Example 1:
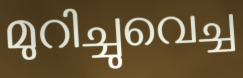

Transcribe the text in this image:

മുറിച്ചുവെച്ച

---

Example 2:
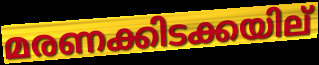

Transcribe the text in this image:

മരണക്കിടക്കയില്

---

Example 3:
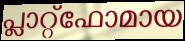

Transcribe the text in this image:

പ്ലാറ്റ്ഫോമായ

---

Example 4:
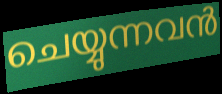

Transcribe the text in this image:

ചെയ്യുന്നവൻ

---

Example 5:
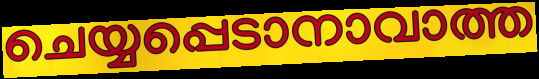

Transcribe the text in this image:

ചെയ്യപ്പെടാനാവാത്ത